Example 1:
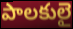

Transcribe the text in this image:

పాలకులై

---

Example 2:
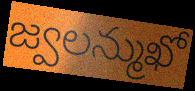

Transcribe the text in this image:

జ్వలన్ముఖో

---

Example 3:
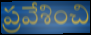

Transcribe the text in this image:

ప్రవేశించి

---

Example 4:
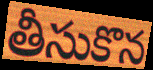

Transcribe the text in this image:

తీసుకొన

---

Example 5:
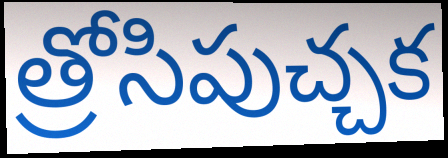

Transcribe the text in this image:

త్రోసిపుచ్చక